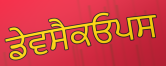
ਡੇਵਸੈਕਓਪਸ